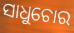
ସାଧୁଚୋର